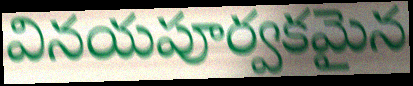
వినయపూర్వకమైన